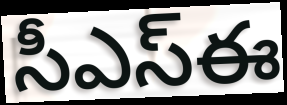
సీఎస్ఈ